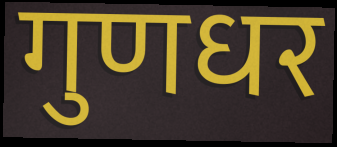
गुणधर